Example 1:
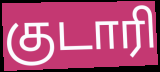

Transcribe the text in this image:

குடாரி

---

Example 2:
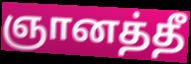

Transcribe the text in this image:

ஞானத்தீ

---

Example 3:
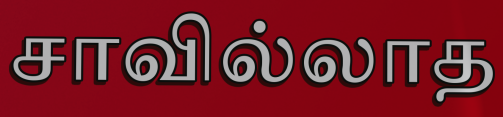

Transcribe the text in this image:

சாவில்லாத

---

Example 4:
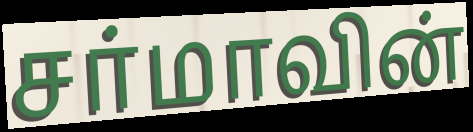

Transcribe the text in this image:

சர்மாவின்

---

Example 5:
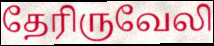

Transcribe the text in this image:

தேரிருவேலி